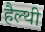
हैल्थी